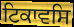
ਟਿਕਾਵਸਿ